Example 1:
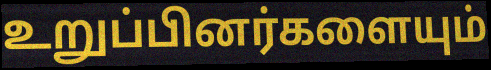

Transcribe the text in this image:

உறுப்பினர்களையும்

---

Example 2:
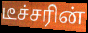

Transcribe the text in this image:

டீச்சரின்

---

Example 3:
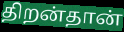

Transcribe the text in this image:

திறன்தான்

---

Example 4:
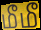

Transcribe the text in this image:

மீமீ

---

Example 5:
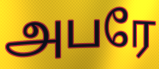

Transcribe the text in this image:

அபரே